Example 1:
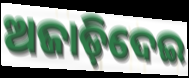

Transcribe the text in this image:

ଅଜାଡ଼ିଦେଇ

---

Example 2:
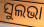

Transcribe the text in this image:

ସୁଲଭା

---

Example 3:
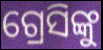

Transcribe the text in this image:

ଗ୍ରେସିଙ୍କୁ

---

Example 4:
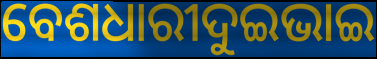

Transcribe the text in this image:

ବେଶଧାରୀଦୁଇଭାଇ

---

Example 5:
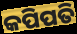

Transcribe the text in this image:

କପିପତି